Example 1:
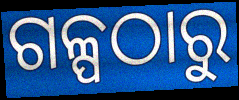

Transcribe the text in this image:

ଗଳ୍ପଠାରୁ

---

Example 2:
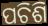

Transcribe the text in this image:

ପଚିଶି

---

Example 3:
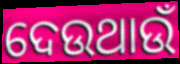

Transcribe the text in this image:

ଦେଉଥାଉଁ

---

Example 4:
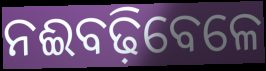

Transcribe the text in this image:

ନଈବଢ଼ିବେଳେ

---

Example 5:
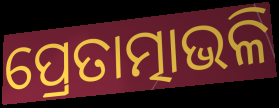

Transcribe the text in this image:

ପ୍ରେତାତ୍ମାଭଳି